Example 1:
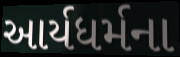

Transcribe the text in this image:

આર્યધર્મના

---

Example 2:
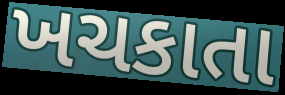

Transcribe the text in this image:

ખચકાતા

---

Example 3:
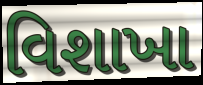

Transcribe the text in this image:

વિશાખા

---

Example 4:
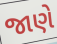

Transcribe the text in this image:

જાણે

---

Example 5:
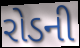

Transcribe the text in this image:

રોડની